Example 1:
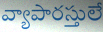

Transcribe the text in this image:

వ్యాపారస్తులే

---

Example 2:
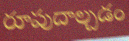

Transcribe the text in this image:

రూపుదాల్చడం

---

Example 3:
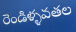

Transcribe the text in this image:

రెండిళ్ళవతల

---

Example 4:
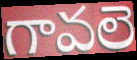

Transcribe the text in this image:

గావలె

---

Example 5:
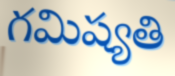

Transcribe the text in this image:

గమిష్యతి